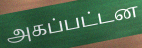
அகப்பட்டன